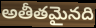
అతీతమైనది